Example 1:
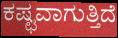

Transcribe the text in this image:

ಕಷ್ಟವಾಗುತ್ತಿದೆ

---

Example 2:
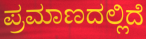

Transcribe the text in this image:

ಪ್ರಮಾಣದಲ್ಲಿದೆ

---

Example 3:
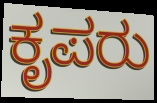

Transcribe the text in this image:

ಕೃಪರು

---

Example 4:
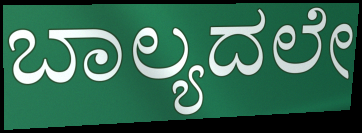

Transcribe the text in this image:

ಬಾಲ್ಯದಲೇ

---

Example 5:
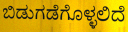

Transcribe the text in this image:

ಬಿಡುಗಡೆಗೊಳ್ಳಲಿದೆ